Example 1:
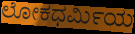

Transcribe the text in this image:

ಲೋಕಧರ್ಮಿಯ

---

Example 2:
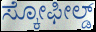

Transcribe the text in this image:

ಸ್ಕೋಫೀಲ್ಡ್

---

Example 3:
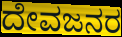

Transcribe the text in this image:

ದೇವಜನರ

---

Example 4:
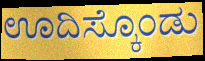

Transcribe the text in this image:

ಊದಿಸ್ಕೊಂಡು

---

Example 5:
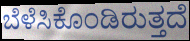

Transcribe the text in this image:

ಬೆಳೆಸಿಕೊಂಡಿರುತ್ತದೆ